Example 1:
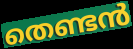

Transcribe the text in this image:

തെണ്ടൻ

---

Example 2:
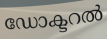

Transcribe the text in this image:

ഡോക്ടറൽ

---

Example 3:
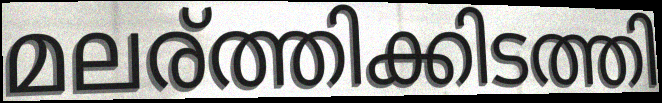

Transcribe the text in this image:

മലര്ത്തിക്കിടത്തി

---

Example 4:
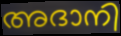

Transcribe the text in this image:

അദാനി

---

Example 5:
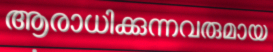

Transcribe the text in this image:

ആരാധിക്കുന്നവരുമായ